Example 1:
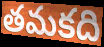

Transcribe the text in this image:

తమకది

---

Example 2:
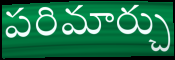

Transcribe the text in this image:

పరిమార్చు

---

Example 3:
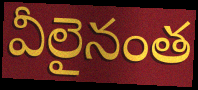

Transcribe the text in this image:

వీలైనంత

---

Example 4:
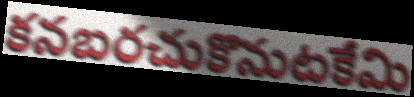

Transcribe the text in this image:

కనబరచుకొనుటకేమి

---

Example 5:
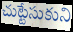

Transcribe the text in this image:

చుట్టేసుకుని